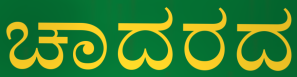
ಚಾದರದ